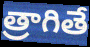
త్రాగితే